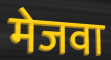
मेजवा